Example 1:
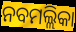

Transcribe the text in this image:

ନବମଲ୍ଲିକା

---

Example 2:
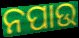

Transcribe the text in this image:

ନପାଉ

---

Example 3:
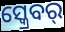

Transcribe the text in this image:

ସ୍କ୍ରେବର୍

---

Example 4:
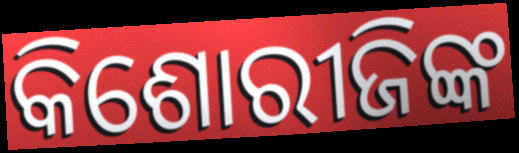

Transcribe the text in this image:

କିଶୋରୀଜିଙ୍କ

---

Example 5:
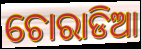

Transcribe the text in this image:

ଚୋରାଡିଆ